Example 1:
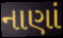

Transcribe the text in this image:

નાણાં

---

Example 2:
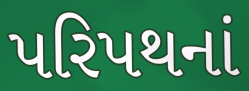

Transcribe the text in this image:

પરિપથનાં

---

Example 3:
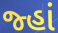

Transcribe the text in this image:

જ્હાં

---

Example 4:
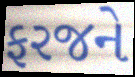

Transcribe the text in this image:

ફરજને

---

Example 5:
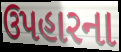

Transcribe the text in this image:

ઉપહારના